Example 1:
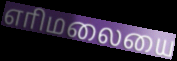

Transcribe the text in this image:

எரிமலையை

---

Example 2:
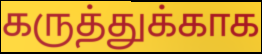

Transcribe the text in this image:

கருத்துக்காக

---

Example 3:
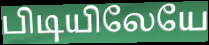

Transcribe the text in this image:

பிடியிலேயே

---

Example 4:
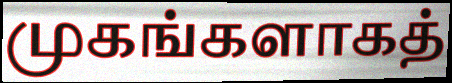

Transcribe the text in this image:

முகங்களாகத்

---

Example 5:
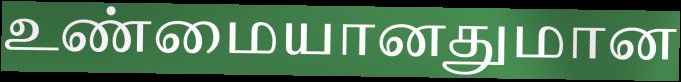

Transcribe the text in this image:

உண்மையானதுமான